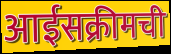
आईसक्रीमची